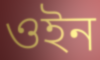
ওইন